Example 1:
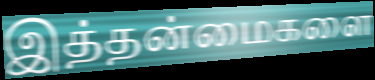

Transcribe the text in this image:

இத்தன்மைகளை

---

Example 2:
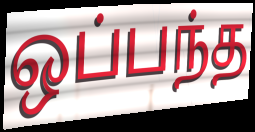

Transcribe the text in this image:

ஒப்பந்த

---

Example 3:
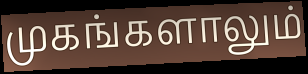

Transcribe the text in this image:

முகங்களாலும்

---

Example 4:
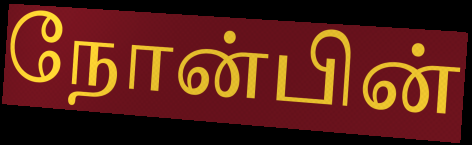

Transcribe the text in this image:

நோன்பின்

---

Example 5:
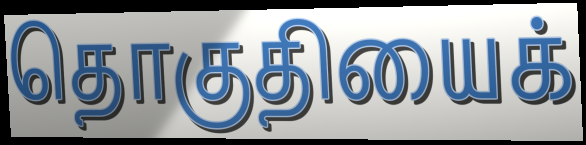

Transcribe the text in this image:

தொகுதியைக்